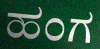
ಹಂಗ